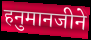
हनुमानजीने